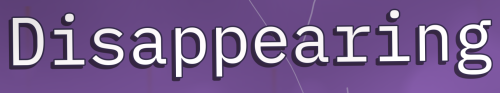
Disappearing